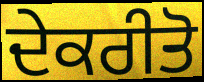
ਦੇਕਰੀਤੋ